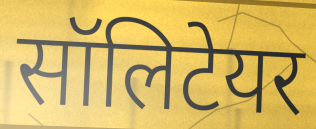
सॉलिटेयर